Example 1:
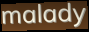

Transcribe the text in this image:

malady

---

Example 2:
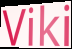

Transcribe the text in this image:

Viki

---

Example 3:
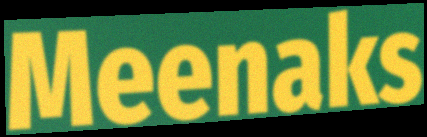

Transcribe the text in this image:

Meenaks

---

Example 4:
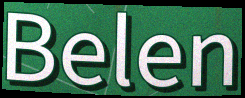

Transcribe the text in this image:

Belen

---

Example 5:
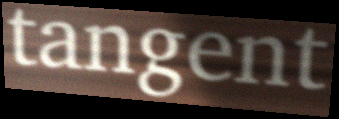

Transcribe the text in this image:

tangent